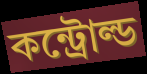
কন্ট্রোল্ড